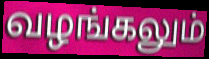
வழங்கலும்